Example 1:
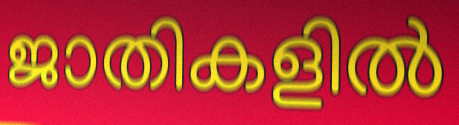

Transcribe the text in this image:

ജാതികളിൽ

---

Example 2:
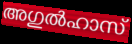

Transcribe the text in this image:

അഗുൽഹാസ്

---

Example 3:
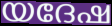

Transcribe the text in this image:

യദേഷ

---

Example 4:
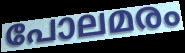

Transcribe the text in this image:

പോലമരം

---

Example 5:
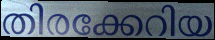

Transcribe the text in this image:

തിരക്കേറിയ